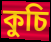
কুচি